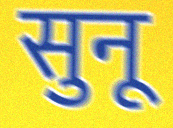
सुनू